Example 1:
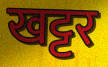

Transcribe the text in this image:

खट्टर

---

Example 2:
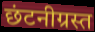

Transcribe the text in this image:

छंटनीग्रस्त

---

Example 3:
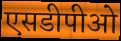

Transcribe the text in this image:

एसडीपीओ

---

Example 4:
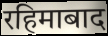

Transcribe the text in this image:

रहिमाबाद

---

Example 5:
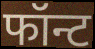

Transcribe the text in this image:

फॉन्ट